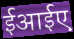
ईआईए